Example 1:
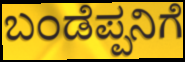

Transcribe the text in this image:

ಬಂಡೆಪ್ಪನಿಗೆ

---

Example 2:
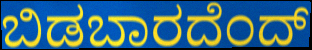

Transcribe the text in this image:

ಬಿಡಬಾರದೆಂದ್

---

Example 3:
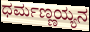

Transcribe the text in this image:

ಧರ್ಮಣ್ಣಯ್ಯನ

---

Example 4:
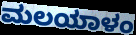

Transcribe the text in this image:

ಮಲಯಾಳಂ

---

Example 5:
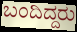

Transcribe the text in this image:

ಬಂದಿದ್ದರು